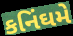
કનિંઘમે